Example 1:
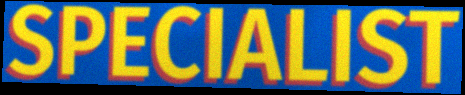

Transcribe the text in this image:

SPECIALIST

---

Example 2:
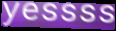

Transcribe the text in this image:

yessss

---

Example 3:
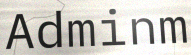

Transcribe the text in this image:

Adminm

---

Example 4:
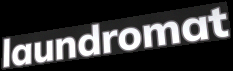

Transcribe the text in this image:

laundromat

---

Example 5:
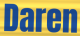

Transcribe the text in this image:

Daren